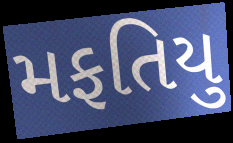
મફતિયુ